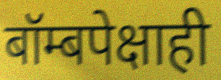
बॉम्बपेक्षाही